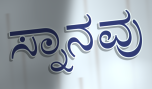
ಸ್ನಾನವು